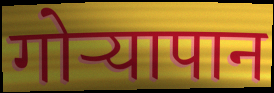
गोऱ्यापान